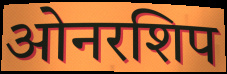
ओनरशिप